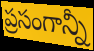
ప్రసంగాన్నీ